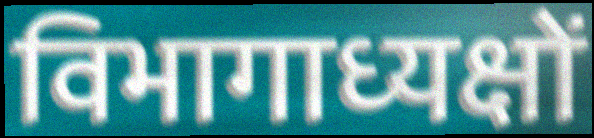
विभागाध्यक्षों